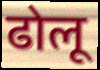
ढोलू